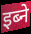
इब्ने